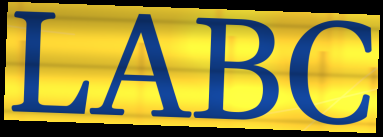
LABC